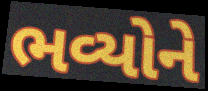
ભવ્યોને